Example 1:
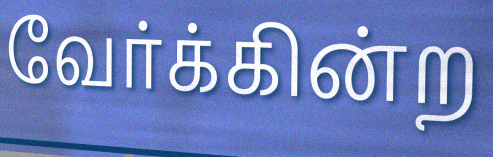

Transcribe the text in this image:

வேர்க்கின்ற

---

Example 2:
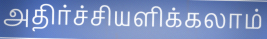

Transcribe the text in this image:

அதிர்ச்சியளிக்கலாம்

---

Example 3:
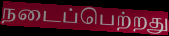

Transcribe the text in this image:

நடைப்பெற்றது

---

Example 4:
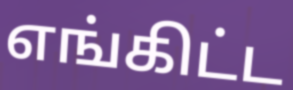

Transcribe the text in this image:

எங்கிட்ட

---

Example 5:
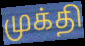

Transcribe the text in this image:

முக்தி